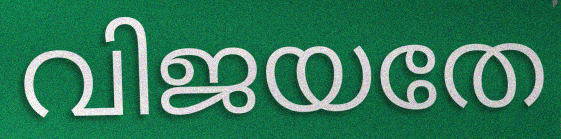
വിജയതേ